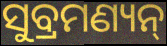
ସୁବ୍ରମଣ୍ୟନ୍